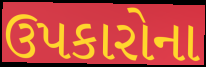
ઉપકારોના